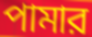
পামার